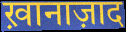
ख़ानाज़ाद